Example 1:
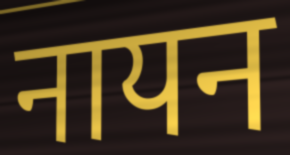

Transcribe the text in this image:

नायन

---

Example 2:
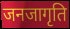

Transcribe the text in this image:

जनजागृति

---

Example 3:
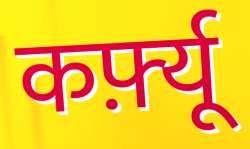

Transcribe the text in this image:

कर्फ़्यू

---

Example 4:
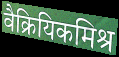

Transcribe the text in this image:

वैक्रियिकमिश्र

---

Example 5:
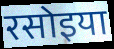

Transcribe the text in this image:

रसोइया